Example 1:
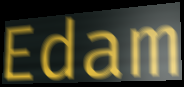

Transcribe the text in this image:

Edam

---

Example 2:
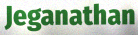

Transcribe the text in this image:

Jeganathan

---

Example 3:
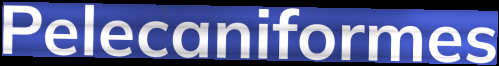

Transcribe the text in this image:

Pelecaniformes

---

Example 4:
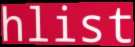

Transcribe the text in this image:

hlist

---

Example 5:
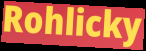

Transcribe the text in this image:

Rohlicky